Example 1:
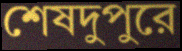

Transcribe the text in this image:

শেষদুপুরে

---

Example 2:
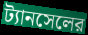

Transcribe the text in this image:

ট্যানসেলের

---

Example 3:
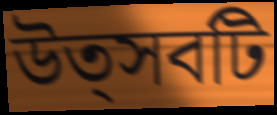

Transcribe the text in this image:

উত্সবটি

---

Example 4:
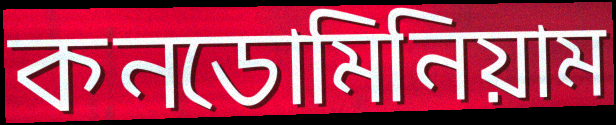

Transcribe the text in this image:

কনডোমিনিয়াম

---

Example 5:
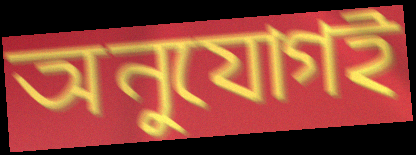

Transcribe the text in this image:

অনুযোগই